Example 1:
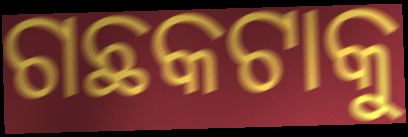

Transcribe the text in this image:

ଗଛକଟାକୁ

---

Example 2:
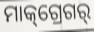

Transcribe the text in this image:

ମାକ୍‌ଗ୍ରେଗର୍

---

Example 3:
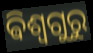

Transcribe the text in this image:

ଵିଶ୍ଵଗୁରୁ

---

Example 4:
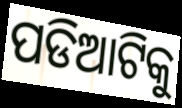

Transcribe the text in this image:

ପଡିଆଟିକୁ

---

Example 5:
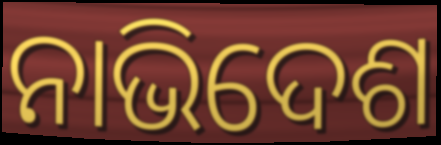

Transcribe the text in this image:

ନାଭିଦେଶ